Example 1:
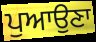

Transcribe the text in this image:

ਪੁਆਉਣਾ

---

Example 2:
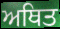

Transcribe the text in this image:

ਅਥਿਤ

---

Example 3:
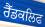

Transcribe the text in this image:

ਰੈੱਡਕਲਿਫ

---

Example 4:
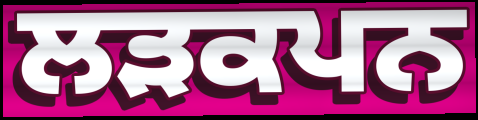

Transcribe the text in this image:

ਲੜਕਪਨ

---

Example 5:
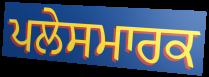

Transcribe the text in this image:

ਪਲੇਸਮਾਰਕ